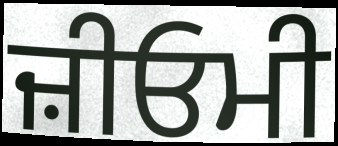
ਜ਼ੀਓਮੀ